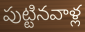
పుట్టినవాళ్ల